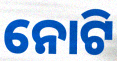
ନୋଟି